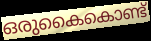
ഒരുകൈകൊണ്ട്